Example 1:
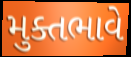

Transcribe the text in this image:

મુક્તભાવે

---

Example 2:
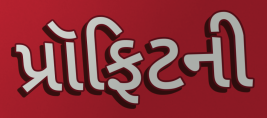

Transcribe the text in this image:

પ્રૉફિટની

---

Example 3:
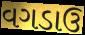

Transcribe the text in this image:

વગડાઉ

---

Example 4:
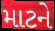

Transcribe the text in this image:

માટને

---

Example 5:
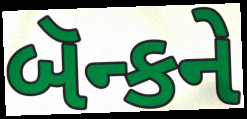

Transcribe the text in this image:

બૅન્કને